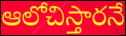
ఆలోచిస్తారనే